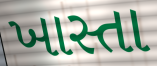
ખાસ્તા